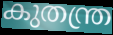
കുതന്ത്ര